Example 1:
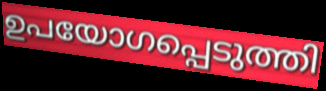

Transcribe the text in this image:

ഉപയോഗപ്പെടുത്തി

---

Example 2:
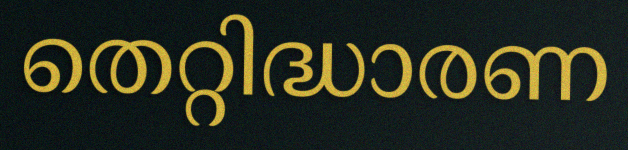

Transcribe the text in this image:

തെറ്റിദ്ധാരണ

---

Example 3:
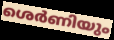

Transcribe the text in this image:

ശെർണിയും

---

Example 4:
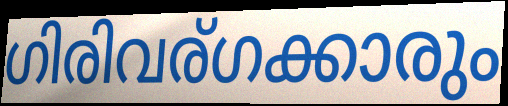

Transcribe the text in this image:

ഗിരിവര്ഗക്കാരും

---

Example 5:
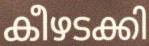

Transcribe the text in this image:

കീഴടക്കി